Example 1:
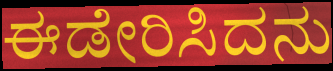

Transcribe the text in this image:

ಈಡೇರಿಸಿದನು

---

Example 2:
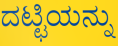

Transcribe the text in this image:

ದಟ್ಟಿಯನ್ನು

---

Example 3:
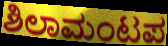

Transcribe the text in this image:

ಶಿಲಾಮಂಟಪ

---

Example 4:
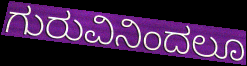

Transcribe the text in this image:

ಗುರುವಿನಿಂದಲೂ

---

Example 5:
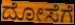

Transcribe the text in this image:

ದೋಸೆಗೆ